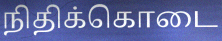
நிதிக்கொடை